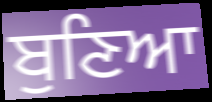
ਬੁਣਿਆ